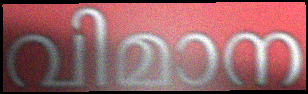
വിമാന